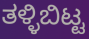
ತಳ್ಳಿಬಿಟ್ಟ